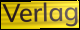
Verlag